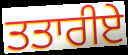
ਤਤਾਰੀਏ